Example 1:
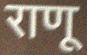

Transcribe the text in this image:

राणू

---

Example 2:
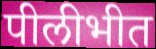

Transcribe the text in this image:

पीलीभीत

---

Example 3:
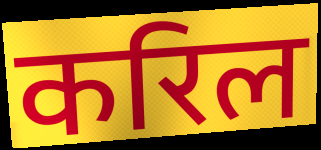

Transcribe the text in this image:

करिल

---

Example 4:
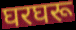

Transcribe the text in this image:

घरघरू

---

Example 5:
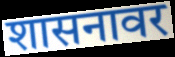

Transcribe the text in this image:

शासनावर